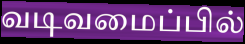
வடிவமைப்பில்